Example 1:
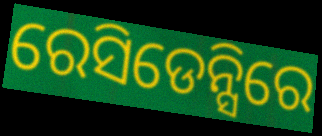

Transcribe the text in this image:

ରେସିଡେନ୍ସିରେ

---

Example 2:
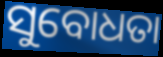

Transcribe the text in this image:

ସୁବୋଧତା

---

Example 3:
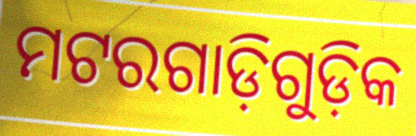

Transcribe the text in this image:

ମଟରଗାଡ଼ିଗୁଡ଼ିକ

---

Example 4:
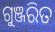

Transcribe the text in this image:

ଗୁଞ୍ଜରିତ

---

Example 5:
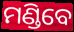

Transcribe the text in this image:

ମଣ୍ଡିବେ